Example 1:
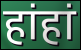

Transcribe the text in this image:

हांहां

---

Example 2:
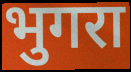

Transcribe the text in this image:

भुगरा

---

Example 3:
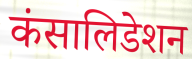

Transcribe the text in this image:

कंसालिडेशन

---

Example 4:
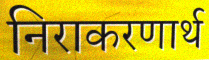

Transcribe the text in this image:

निराकरणार्थ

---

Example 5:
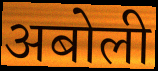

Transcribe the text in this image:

अबोली